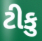
ટીકુ